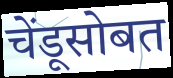
चेंडूसोबत